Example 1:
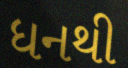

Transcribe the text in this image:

ધનથી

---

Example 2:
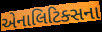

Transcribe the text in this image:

એનાલિટિક્સના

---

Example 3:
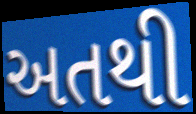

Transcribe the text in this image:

અતથી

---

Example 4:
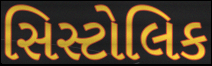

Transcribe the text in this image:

સિસ્ટોલિક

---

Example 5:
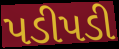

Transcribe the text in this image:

પડીપડી